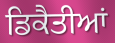
ਡਿਕੈਤੀਆਂ